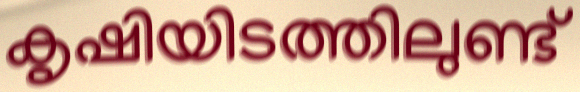
കൃഷിയിടത്തിലുണ്ട്